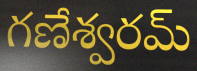
గణేశ్వరమ్